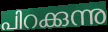
പിറക്കുന്നു